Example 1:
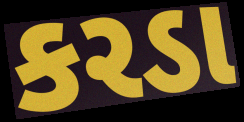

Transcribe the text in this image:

કરડા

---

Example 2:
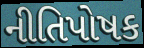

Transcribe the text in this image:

નીતિપોષક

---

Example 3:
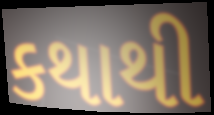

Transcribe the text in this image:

કથાથી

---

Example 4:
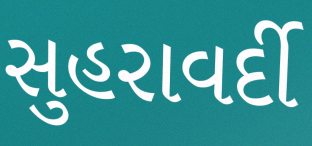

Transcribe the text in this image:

સુહરાવર્દી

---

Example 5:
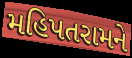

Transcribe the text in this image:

મહિપતરામને